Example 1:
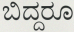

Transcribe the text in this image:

ಬಿದ್ದರೂ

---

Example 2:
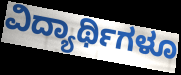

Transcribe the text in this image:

ವಿದ್ಯಾರ್ಥಿಗಳೂ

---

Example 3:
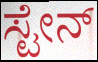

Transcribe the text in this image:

ಸ್ಟೇನ್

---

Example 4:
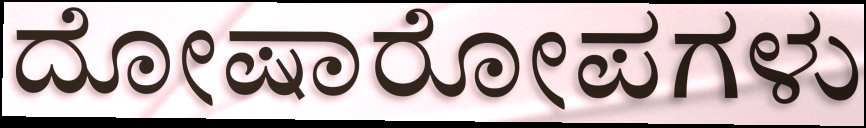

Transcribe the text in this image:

ದೋಷಾರೋಪಗಳು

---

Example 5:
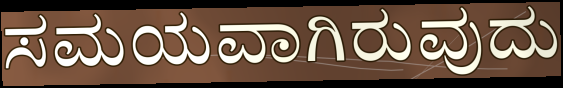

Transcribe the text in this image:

ಸಮಯವಾಗಿರುವುದು